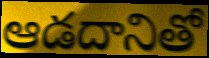
ఆడదానితో